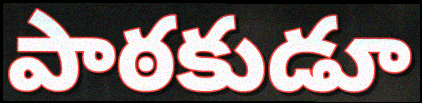
పాఠకుడూ